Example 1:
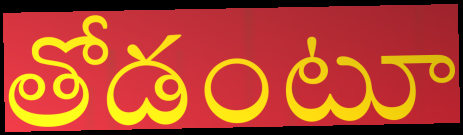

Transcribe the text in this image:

తోడంటూ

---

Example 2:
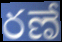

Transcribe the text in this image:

రణే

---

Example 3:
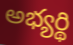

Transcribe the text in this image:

అభ్యర్థి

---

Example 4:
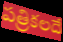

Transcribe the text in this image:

పత్రికలదే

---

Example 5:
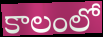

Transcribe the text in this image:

కాలంలో